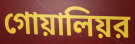
গোয়ালিয়র